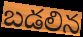
బడలిన